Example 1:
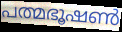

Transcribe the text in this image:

പത്മഭൂഷൺ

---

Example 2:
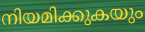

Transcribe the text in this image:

നിയമിക്കുകയും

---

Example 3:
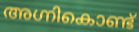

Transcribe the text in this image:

അഗ്നികൊണ്ട്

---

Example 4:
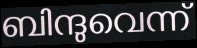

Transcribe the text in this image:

ബിന്ദുവെന്ന്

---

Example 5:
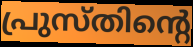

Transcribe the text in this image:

പ്രുസ്തിന്റെ